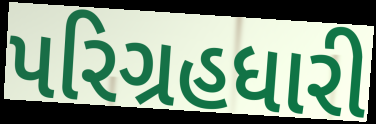
પરિગ્રહધારી